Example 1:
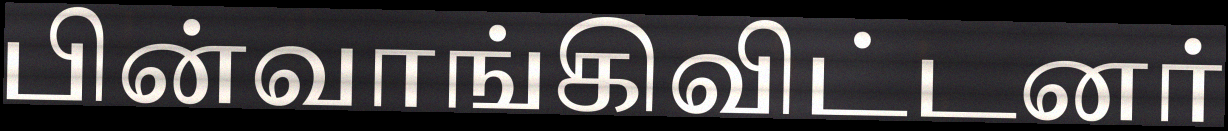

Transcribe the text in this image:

பின்வாங்கிவிட்டனர்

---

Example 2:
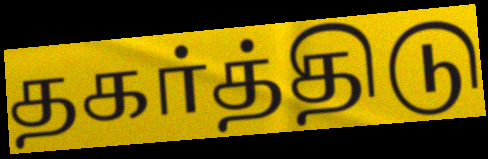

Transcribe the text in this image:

தகர்த்திடு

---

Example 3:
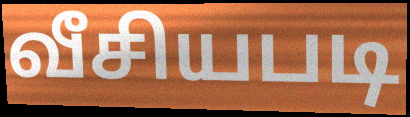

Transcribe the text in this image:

வீசியபடி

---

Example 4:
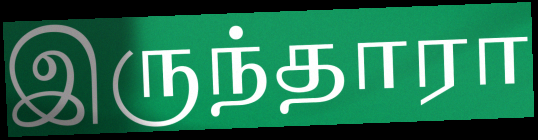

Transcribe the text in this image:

இருந்தாரா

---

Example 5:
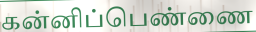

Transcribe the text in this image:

கன்னிப்பெண்ணை